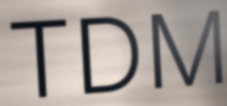
TDM